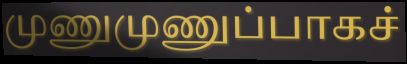
முணுமுணுப்பாகச்